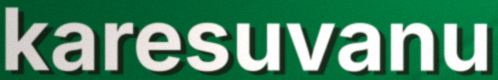
karesuvanu